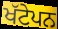
ਖੱਟੇਪਨ